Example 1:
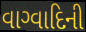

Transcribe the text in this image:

વાગ્વાદિની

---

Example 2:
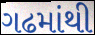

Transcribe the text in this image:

ગઢમાંથી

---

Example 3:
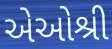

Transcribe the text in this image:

એઓશ્રી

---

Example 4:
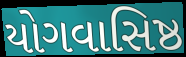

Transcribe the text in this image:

યોગવાસિષ્ઠ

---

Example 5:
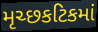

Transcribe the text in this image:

મૃચ્છકટિકમાં